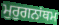
ਮੁਰੁਗਨਾਂਥਮ